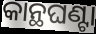
କାନ୍ଥଘଣ୍ଟା